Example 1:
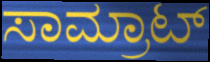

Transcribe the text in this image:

ಸಾಮ್ರಾಟ್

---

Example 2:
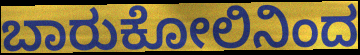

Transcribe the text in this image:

ಬಾರುಕೋಲಿನಿಂದ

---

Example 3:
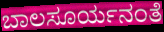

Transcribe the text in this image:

ಬಾಲಸೂರ್ಯನಂತೆ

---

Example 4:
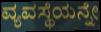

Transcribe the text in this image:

ವ್ಯವಸ್ಥೆಯನ್ನೇ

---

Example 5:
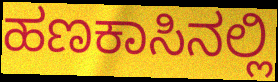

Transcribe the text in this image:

ಹಣಕಾಸಿನಲ್ಲಿ